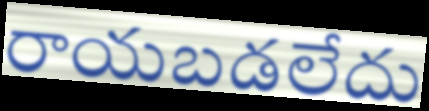
రాయబడలేదు